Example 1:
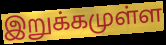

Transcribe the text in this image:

இறுக்கமுள்ள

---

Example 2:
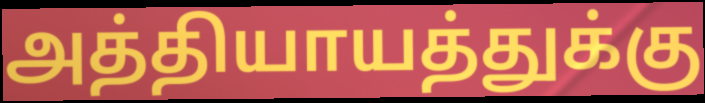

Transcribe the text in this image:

அத்தியாயத்துக்கு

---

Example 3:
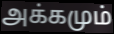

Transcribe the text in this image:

அக்கமும்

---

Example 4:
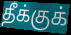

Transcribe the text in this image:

தீக்குக்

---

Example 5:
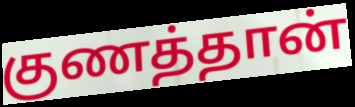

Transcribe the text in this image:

குணத்தான்